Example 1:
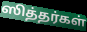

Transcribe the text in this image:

ஸித்தர்கள்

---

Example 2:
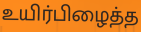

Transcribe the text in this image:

உயிர்பிழைத்த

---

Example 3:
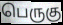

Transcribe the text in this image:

பெருகு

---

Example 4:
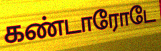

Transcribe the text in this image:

கண்டாரோடே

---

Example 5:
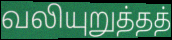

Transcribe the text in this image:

வலியுறுத்தத்